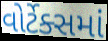
વોર્ટેક્સમાં